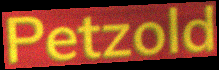
Petzold